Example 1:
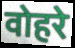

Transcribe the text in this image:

वोहरे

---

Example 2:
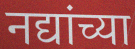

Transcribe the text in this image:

नद्यांच्या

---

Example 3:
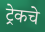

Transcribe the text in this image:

ट्रेकचे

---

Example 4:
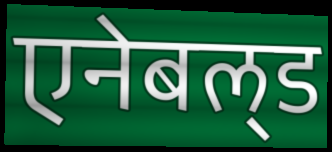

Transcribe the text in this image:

एनेबल्ड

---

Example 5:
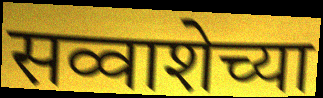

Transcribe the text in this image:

सव्वाशेच्या